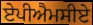
ਏਪੀਐਮਸੀਏ